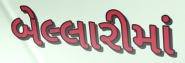
બેલ્લારીમાં